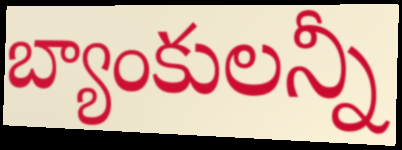
బ్యాంకులన్నీ